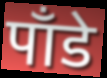
पाँडे